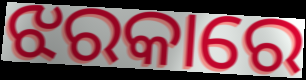
ଝରକାରେ